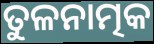
ତୁଳନାତ୍ମକ